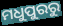
ମଧୁପୁରରୁ